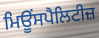
ਮਿਊਂਸਪੈਲਿਟੀਜ਼